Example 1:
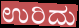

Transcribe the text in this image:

ಉರಿದು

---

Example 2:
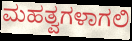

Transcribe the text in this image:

ಮಹತ್ವಗಳಾಗಲಿ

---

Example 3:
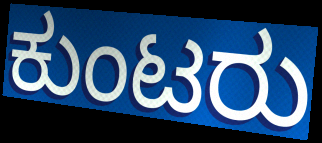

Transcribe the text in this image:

ಕುಂಟರು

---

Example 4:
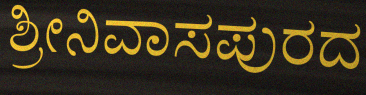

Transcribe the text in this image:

ಶ್ರೀನಿವಾಸಪುರದ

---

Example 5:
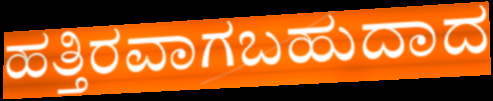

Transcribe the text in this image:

ಹತ್ತಿರವಾಗಬಹುದಾದ